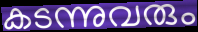
കടന്നുവരും